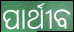
ପାର୍ଥୀବ